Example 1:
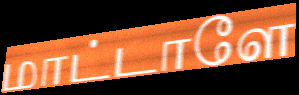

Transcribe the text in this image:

மாட்டாளே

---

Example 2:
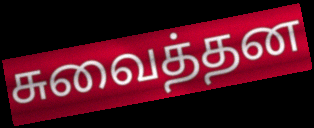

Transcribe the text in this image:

சுவைத்தன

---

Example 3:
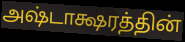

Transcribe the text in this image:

அஷ்டாக்ஷரத்தின்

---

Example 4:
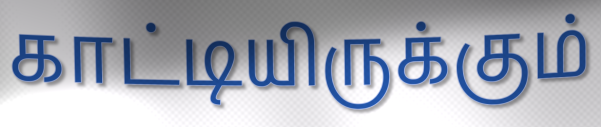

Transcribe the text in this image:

காட்டியிருக்கும்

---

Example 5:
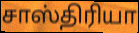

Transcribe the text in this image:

சாஸ்திரியா